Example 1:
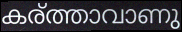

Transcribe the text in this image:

കര്ത്താവാണു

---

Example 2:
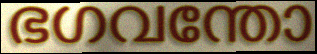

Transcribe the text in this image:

ഭഗവന്തോ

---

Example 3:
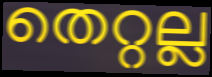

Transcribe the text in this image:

തെറ്റല്ല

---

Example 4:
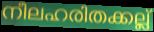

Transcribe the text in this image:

നീലഹരിതക്കല്ല്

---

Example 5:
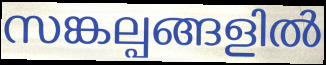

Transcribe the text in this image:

സങ്കല്പങ്ങളിൽ